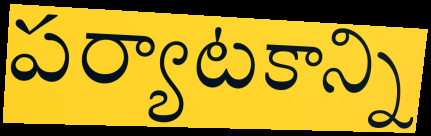
పర్యాటకాన్ని